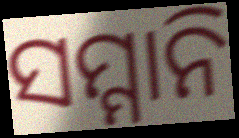
ସମ୍ମାନି